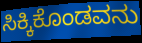
ಸಿಕ್ಕಿಕೊಂಡವನು